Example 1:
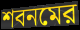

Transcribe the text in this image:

শবনমের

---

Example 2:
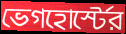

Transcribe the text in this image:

ভেগহোর্স্টের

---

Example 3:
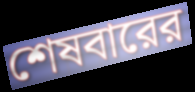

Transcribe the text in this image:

শেষবারের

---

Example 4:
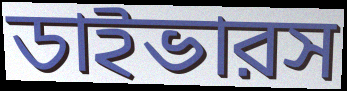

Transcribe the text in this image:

ডাইভারস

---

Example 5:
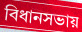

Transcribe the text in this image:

বিধানসভায়